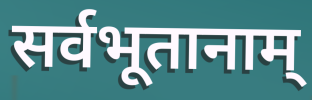
सर्वभूतानाम्